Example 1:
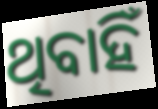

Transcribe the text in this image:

ଥିବାହିଁ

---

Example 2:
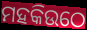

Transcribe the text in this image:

ମହକିଉଠେ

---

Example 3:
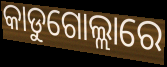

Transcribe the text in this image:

କାଡୁଗୋଲ୍ଲାରେ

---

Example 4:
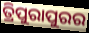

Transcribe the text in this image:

ତ୍ରିପୁରାପୁରର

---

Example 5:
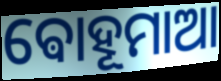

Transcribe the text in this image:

ଵୋହୂମାଆ